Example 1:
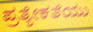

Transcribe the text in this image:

ಪ್ರತ್ಯೇಕತೆಯು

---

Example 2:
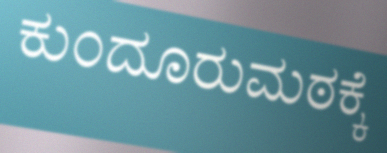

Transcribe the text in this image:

ಕುಂದೂರುಮಠಕ್ಕೆ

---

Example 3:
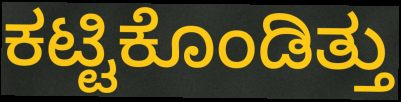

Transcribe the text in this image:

ಕಟ್ಟಿಕೊಂಡಿತ್ತು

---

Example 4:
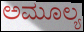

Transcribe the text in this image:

ಅಮೂಲ್ಯ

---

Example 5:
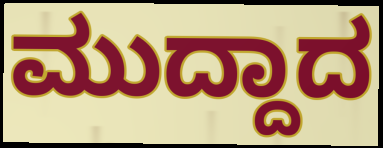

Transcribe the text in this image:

ಮುದ್ದಾದ